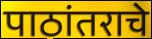
पाठांतराचे